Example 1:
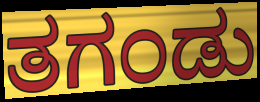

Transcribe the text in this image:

ತಗಂಡು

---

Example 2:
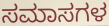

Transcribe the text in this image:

ಸಮಾಸಗಳ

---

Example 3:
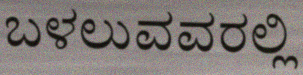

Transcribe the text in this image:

ಬಳಲುವವರಲ್ಲಿ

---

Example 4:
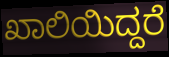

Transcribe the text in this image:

ಖಾಲಿಯಿದ್ದರೆ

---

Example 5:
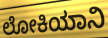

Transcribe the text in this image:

ಲೋಕಿಯಾನಿ